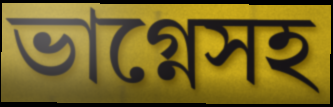
ভাগ্নেসহ